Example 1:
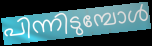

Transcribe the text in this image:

പിന്നിടുമ്പോൾ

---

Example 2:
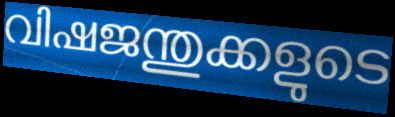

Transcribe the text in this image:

വിഷജന്തുക്കളുടെ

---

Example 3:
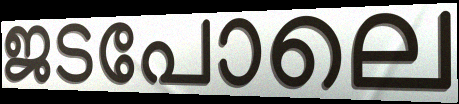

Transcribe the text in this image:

ജടപോലെ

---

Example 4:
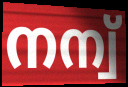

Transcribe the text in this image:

നന്വ്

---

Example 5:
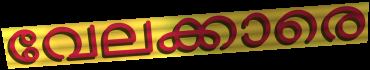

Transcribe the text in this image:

വേലക്കാരെ